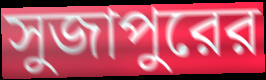
সুজাপুরের